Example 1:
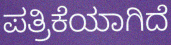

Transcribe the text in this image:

ಪತ್ರಿಕೆಯಾಗಿದೆ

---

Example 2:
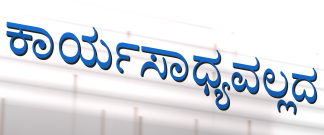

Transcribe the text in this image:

ಕಾರ್ಯಸಾಧ್ಯವಲ್ಲದ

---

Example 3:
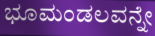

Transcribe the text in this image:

ಭೂಮಂಡಲವನ್ನೇ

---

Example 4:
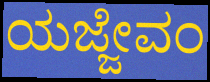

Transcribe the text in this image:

ಯಜ್ಜೇವಂ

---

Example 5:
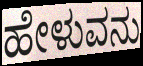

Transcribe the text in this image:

ಹೇಳುವನು